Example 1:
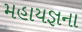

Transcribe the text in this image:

મહાયજ્ઞના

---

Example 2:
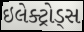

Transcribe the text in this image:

ઇલેક્ટ્રોડ્સ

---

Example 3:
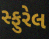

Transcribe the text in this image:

સ્ફુરેલ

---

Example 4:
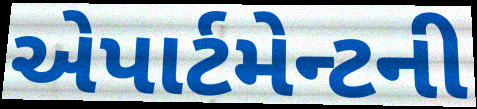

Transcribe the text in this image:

એપાર્ટમેન્ટની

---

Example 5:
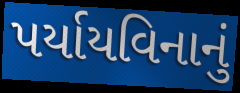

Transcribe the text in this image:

પર્યાયવિનાનું